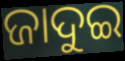
ଜାଦୁଇ